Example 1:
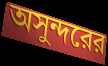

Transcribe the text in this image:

অসুন্দরের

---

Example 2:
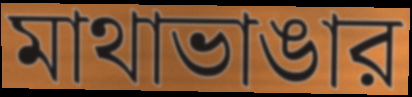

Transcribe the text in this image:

মাথাভাঙার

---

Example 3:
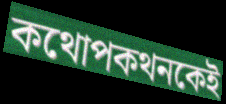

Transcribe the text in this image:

কথোপকথনকেই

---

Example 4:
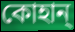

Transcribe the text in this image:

কোহান্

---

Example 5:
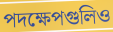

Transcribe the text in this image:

পদক্ষেপগুলিও